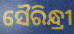
ସୈରିନ୍ଧ୍ରୀ